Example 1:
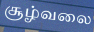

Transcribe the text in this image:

சூழ்வலை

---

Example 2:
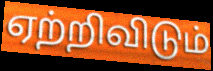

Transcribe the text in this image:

ஏற்றிவிடும்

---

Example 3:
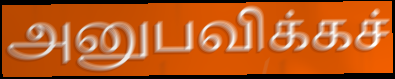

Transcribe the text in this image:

அனுபவிக்கச்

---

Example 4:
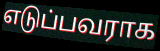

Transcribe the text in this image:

எடுப்பவராக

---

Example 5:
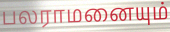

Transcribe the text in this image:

பலராமனையும்